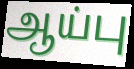
ஆய்பு